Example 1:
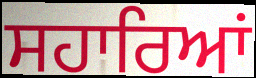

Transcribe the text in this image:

ਸਹਾਰਿਆਂ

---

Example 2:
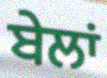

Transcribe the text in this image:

ਬੇਲਾਂ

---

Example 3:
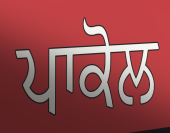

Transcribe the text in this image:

ਪਾਕੋਲ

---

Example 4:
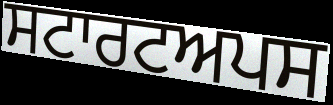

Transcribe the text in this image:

ਸਟਾਰਟਅਪਸ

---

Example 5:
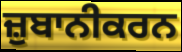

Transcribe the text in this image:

ਜ਼ੁਬਾਨੀਕਰਨ